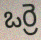
ఒర్రె